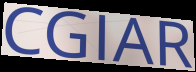
CGIAR